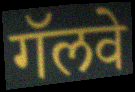
गॅलवे